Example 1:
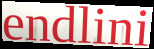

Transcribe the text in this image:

endlini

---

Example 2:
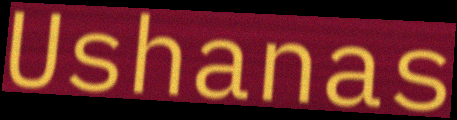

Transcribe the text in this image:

Ushanas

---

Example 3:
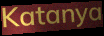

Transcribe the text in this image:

Katanya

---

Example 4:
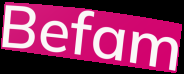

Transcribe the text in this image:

Befam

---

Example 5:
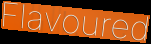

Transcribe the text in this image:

Flavoured